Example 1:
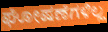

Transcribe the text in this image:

ಘೋಷಣೆಗಳಿಲ್ಲ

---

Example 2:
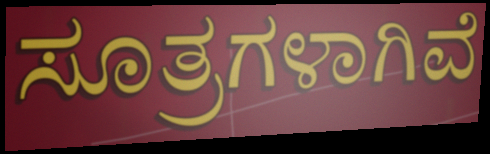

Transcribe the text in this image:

ಸೂತ್ರಗಳಾಗಿವೆ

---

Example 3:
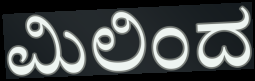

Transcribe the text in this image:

ಮಿಲಿಂದ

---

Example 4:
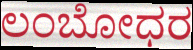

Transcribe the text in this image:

ಲಂಬೋಧರ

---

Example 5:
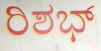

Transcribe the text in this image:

ರಿಶಭ್